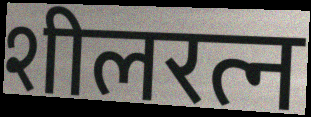
शीलरत्न